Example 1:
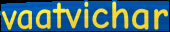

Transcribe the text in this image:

vaatvichar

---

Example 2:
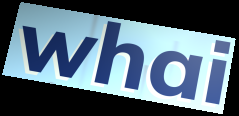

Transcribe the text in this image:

whai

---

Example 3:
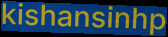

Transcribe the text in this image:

kishansinhp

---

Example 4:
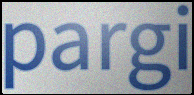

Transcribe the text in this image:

pargi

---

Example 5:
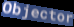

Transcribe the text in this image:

Objector